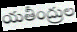
యతీంద్రుల